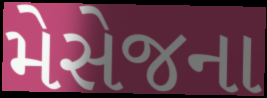
મેસેજના